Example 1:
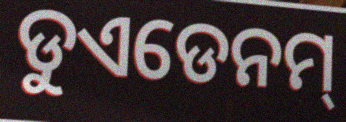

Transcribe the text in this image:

ଡୁଏଡେନମ୍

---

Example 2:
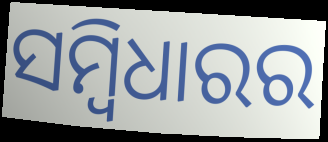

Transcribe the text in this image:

ସମ୍ବିଧାରର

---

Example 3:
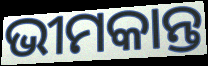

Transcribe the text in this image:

ଭୀମକାନ୍ତ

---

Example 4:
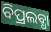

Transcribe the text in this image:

ବିପ୍ରଲବ୍ଧା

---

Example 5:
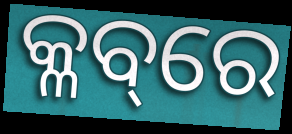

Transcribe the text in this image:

କ୍ଳବ୍‌ରେ